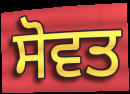
ਸੋਵਤ